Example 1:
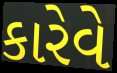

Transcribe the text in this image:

કારેવે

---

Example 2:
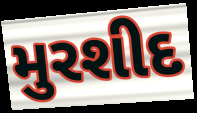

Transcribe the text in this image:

મુરશીદ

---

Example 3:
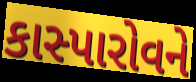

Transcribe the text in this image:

કાસ્પારોવને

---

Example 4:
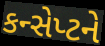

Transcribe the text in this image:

કન્સેપ્ટને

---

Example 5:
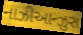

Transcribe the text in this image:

નાઝીઆન્ઝુસ